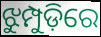
ଝୁମ୍ପୁଡ଼ିରେ